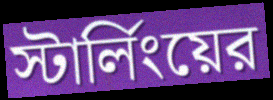
স্টার্লিংয়ের